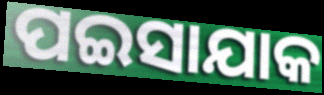
ପଇସାଯାକ